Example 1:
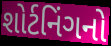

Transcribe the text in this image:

શોર્ટનિંગનો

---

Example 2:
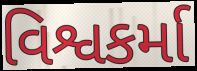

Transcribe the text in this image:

વિશ્વકર્મા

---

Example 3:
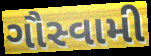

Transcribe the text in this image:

ગૌસ્વામી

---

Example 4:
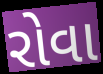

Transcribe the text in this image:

રોવા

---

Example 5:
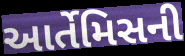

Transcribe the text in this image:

આર્તેમિસની